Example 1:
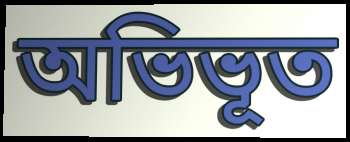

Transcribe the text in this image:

অভিভূত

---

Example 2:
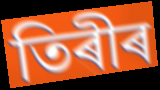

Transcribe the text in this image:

তিৰীৰ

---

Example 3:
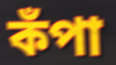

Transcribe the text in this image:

কঁপা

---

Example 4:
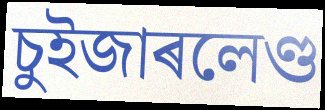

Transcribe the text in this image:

চুইজাৰলেণ্ড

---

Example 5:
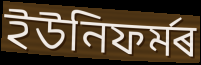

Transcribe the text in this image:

ইউনিফৰ্মৰ